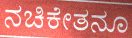
ನಚಿಕೇತನೂ